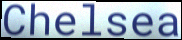
Chelsea